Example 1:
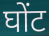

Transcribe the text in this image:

घोंट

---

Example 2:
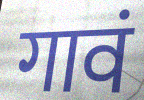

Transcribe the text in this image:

गावं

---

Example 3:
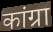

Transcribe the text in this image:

कांग्रा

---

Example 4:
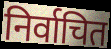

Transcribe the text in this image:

निर्वाचित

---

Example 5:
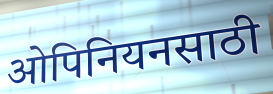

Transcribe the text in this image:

ओपिनियनसाठी